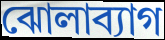
ঝোলাব্যাগ